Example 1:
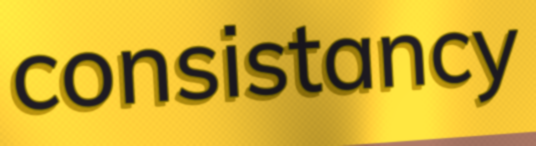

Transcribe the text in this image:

consistancy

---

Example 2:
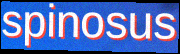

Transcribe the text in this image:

spinosus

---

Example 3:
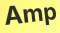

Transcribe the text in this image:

Amp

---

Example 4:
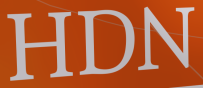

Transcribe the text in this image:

HDN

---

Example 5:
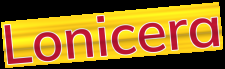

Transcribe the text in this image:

Lonicera